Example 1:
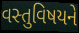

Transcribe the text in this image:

વસ્તુવિષયને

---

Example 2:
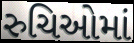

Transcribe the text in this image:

રુચિઓમાં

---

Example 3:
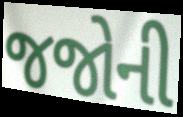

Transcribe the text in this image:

જજોની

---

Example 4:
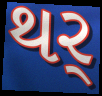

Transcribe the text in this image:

થર્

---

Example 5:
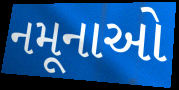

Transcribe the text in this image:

નમૂનાઓ